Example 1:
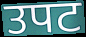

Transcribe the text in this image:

उपट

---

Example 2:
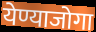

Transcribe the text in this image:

येण्याजोगा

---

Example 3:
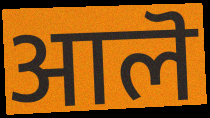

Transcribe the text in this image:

आलॆ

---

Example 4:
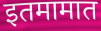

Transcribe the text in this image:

इतमामात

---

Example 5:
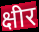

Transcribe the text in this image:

क्षीर